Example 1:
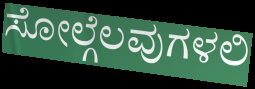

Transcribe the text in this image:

ಸೋಲ್ಗೆಲವುಗಳಲಿ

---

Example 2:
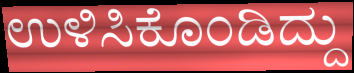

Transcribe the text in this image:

ಉಳಿಸಿಕೊಂಡಿದ್ದು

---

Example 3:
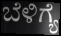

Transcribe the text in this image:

ಬೆಳಿಗ್ಯೆ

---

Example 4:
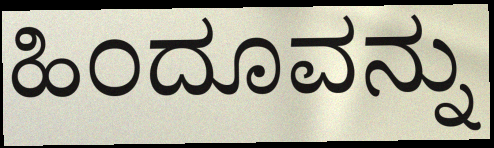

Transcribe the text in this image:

ಹಿಂದೂವನ್ನು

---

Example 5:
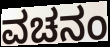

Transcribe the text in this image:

ವಚನಂ